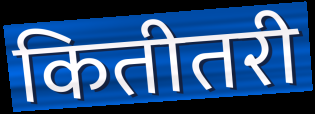
कितीतरी